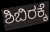
ಶಿಬಿರಕ್ಕೆ